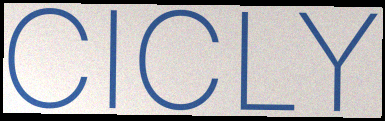
CICLY